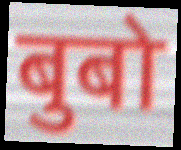
बुबो